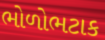
ભોળોભટાક